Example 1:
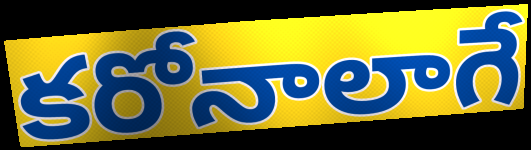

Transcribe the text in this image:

కరోనాలాగే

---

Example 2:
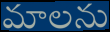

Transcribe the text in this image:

మాలను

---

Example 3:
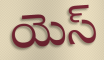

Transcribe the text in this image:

యెస్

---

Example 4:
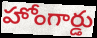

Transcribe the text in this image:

హోంగార్డు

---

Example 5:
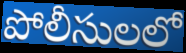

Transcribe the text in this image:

పోలీసులలో